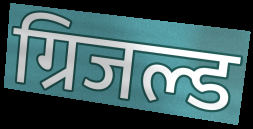
ग्रिजल्ड